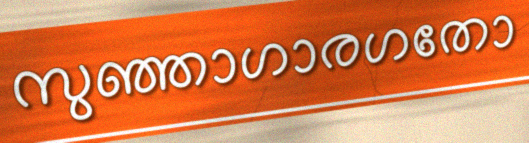
സുഞ്ഞാഗാരഗതോ